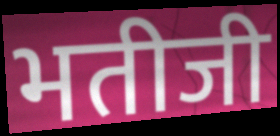
भतीजी